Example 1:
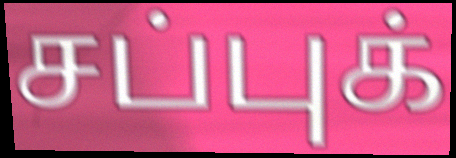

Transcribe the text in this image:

சப்புக்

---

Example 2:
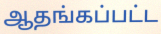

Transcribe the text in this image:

ஆதங்கப்பட்ட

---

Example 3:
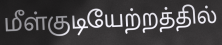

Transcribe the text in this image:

மீள்குடியேற்றத்தில்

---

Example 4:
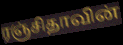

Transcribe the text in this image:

ரஞ்சிதாவின்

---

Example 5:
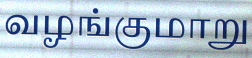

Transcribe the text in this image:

வழங்குமாறு